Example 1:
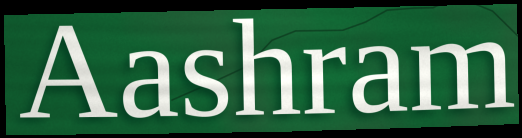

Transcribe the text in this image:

Aashram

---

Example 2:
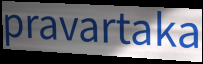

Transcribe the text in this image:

pravartaka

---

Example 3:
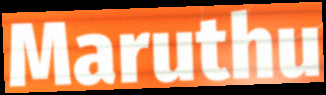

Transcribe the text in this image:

Maruthu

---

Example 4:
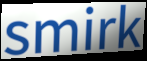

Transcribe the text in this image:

smirk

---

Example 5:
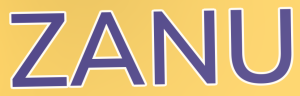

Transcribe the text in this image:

ZANU